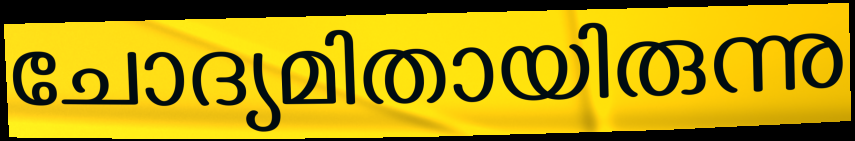
ചോദ്യമിതായിരുന്നു